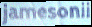
jamesonii